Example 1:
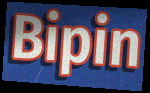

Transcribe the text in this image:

Bipin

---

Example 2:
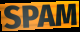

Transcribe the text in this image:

SPAM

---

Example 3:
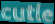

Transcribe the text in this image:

cutle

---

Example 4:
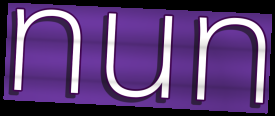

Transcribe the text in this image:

nun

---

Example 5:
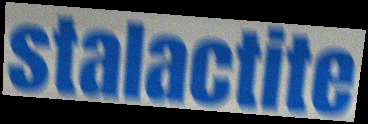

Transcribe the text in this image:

stalactite